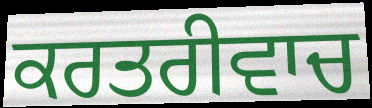
ਕਰਤਰੀਵਾਚ